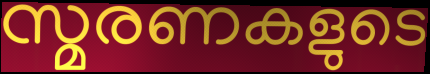
സ്മരണകളുടെ